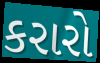
કરારો